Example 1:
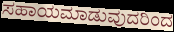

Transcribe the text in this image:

ಸಹಾಯಮಾಡುವುದರಿಂದ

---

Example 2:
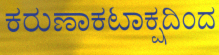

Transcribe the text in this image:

ಕರುಣಾಕಟಾಕ್ಷದಿಂದ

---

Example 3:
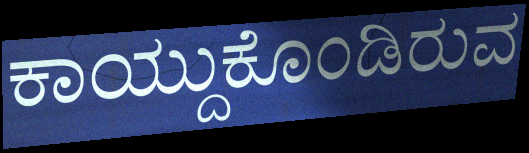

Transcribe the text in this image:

ಕಾಯ್ದುಕೊಂಡಿರುವ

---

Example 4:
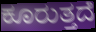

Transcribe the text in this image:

ಕೂರುತ್ತದೆ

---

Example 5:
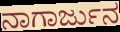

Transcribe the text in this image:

ನಾಗಾರ್ಜುನ